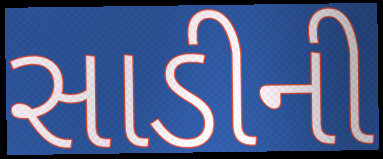
સાડીની